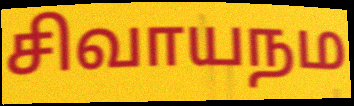
சிவாயநம